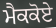
ਮੈਕਕੋਏ